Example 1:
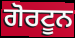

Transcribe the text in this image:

ਗੋਰਟੂਨ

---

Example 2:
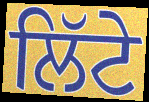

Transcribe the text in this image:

ਲਿੱਟੇ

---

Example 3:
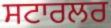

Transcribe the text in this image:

ਸਟਾਰਲਰ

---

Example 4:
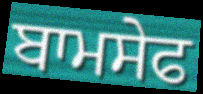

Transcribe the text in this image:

ਬਾਮਸੇਫ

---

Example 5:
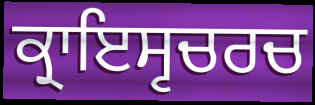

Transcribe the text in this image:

ਕ੍ਰਾਇਸ੍ਟਚਰਚ